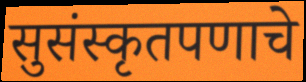
सुसंस्कृतपणाचे